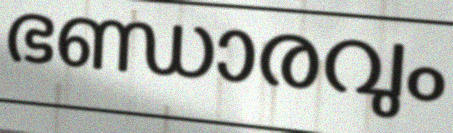
ഭണ്ഡാരവും